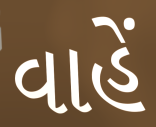
વાહેં